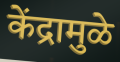
केंद्रामुळे